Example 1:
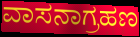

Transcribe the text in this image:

ವಾಸನಾಗ್ರಹಣ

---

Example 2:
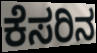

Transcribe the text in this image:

ಕೆಸರಿನ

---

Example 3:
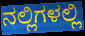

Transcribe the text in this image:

ನಲ್ಲಿಗಳಲ್ಲಿ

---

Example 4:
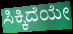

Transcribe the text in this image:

ಸಿಕ್ಕಿದೆಯೇ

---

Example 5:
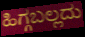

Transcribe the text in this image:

ಹಿಗ್ಗಬಲ್ಲದು